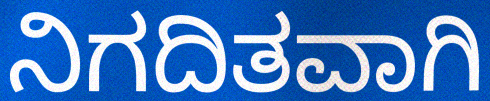
ನಿಗದಿತವಾಗಿ